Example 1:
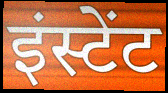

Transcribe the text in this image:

इंस्टेंट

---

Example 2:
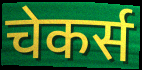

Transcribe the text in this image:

चेकर्स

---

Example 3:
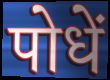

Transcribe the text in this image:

पोधें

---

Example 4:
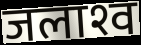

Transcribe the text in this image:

जलाश्व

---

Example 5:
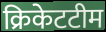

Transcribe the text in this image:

क्रिकेटटीम